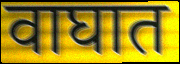
वाघात